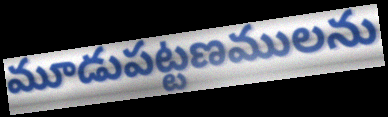
మూడుపట్టణములను